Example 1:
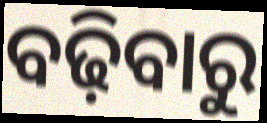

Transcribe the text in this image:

ବଢ଼ିବାରୁ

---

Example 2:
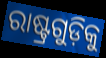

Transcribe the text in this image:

ରାଷ୍ଟ୍ରଗୁଡ଼ିକୁ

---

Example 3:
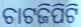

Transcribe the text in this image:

ଚାଟଜିପିଟି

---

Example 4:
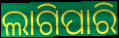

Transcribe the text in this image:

ଲାଗିପାରି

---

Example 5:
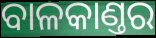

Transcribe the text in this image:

ବାଳକାଣ୍ତର